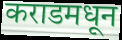
कराडमधून